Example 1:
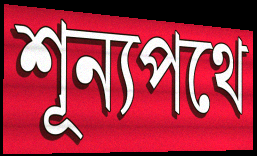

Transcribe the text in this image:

শূন্যপথে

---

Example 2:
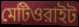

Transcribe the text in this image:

মেটিওরাইট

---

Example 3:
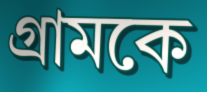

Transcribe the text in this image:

গ্রামকে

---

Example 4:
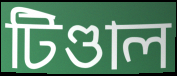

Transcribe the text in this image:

টিণ্ডাল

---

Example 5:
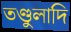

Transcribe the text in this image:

তণ্ডুলাদি